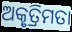
ଅକୃତ୍ରିମତା